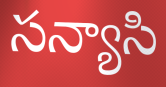
సన్యాసి